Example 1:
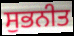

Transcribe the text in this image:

ਸੁਭਨੀਤ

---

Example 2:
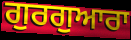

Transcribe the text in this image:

ਗੁਰਗੁਆਰਾ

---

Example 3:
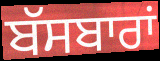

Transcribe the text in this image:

ਬੱਸਬਾਰਾਂ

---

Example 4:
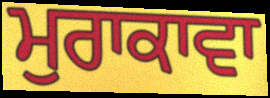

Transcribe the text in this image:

ਮੁਰਾਕਾਵਾ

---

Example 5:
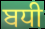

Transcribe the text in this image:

ਬਧੀ